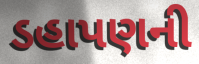
ડહાપણની